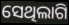
ସେଥିଲାଗି